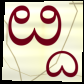
ೞ್ದ